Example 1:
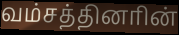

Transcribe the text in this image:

வம்சத்தினரின்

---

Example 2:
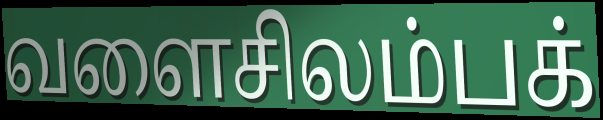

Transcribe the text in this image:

வளைசிலம்பக்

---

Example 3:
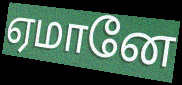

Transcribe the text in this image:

ஏமானே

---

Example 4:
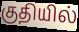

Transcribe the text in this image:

குதியில்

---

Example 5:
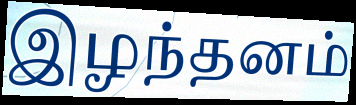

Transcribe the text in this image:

இழந்தனம்